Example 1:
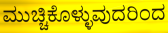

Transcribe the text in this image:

ಮುಚ್ಚಿಕೊಳ್ಳುವುದರಿಂದ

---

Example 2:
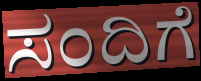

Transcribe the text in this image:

ಸಂದಿಗೆ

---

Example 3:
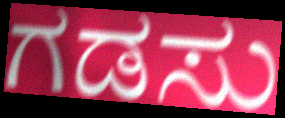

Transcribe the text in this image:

ಗಡಸು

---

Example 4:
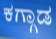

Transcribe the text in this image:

ಕಗ್ಗಾಡ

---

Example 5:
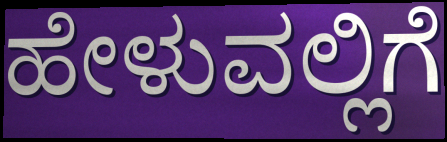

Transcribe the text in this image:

ಹೇಳುವಲ್ಲಿಗೆ